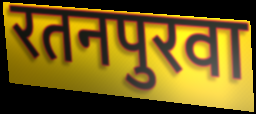
रतनपुरवा